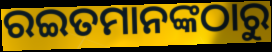
ରଇତମାନଙ୍କଠାରୁ